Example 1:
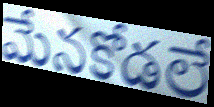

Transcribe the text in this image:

మేనకోడలే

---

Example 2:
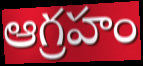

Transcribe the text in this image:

ఆగ్రహం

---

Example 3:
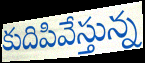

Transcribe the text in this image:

కుదిపివేస్తున్న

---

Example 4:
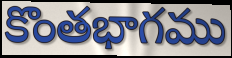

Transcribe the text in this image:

కొంతభాగము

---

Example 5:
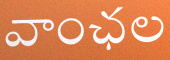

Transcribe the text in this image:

వాంఛల